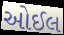
ઓઈલ